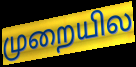
முறையில